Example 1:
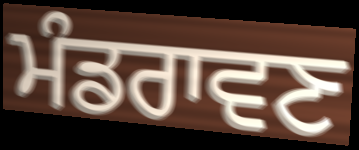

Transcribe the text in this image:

ਮੰਡਰਾਵਣ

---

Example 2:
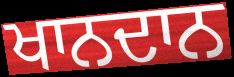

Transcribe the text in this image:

ਖਾਨਦਾਨ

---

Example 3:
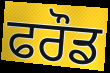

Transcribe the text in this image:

ਫਰੌਡ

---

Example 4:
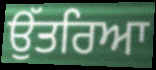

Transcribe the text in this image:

ਉੱਤਰਿਆ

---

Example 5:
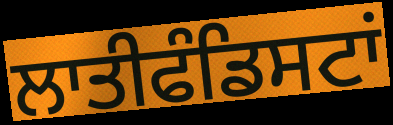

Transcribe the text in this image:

ਲਾਤੀਫੰਡਿਸਟਾਂ